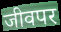
जीवपर